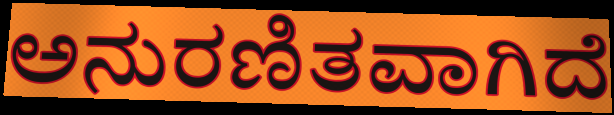
ಅನುರಣಿತವಾಗಿದೆ